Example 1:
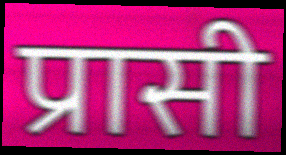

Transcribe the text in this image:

प्रासी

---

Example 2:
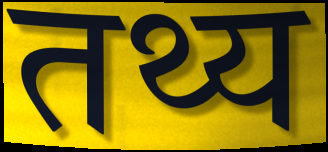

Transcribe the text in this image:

तथ्य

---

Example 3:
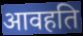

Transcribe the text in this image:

आवहति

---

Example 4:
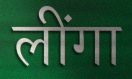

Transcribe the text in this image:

लींगा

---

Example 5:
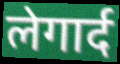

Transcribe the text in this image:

लेगार्द